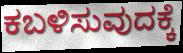
ಕಬಳಿಸುವುದಕ್ಕೆ